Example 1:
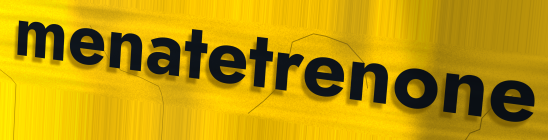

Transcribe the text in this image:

menatetrenone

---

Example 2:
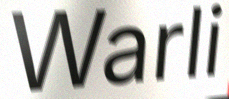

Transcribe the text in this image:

Warli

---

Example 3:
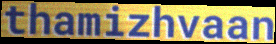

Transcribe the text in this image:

thamizhvaan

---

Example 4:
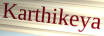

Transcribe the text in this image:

Karthikeya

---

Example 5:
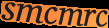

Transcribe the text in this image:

smcmrc